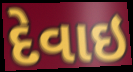
દેવાઇ